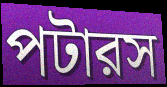
পটারস